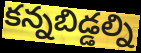
కన్నబిడ్డల్ని